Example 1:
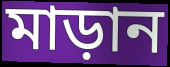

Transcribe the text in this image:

মাড়ান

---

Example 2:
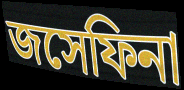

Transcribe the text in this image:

জসেফিনা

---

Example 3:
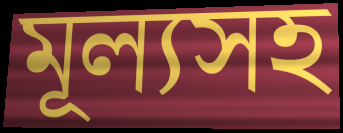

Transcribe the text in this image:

মূল্যসহ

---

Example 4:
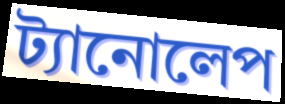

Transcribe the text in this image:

ট্যানোলেপ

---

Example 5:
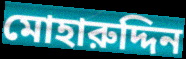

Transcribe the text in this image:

মোহারুদ্দিন